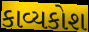
કાવ્યકોશ